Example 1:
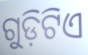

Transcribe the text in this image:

ଗୁଡ଼ିଟିଏ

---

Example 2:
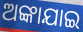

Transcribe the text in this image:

ଅଙ୍କାଯାଇ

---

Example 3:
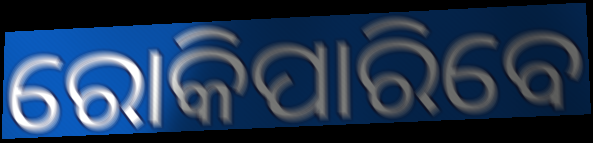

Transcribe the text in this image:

ରୋକିପାରିବେ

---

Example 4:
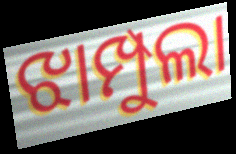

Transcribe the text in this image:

ଝାମ୍ପୁଲା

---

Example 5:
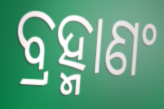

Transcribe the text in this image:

ବ୍ରହ୍ମାଣଂ